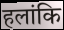
हलांकि